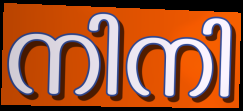
നിനി